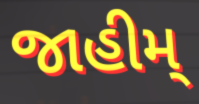
જાહીમ્